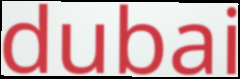
dubai